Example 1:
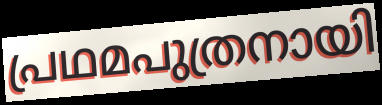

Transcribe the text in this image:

പ്രഥമപുത്രനായി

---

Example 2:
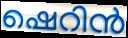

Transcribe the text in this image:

ഷെറിൻ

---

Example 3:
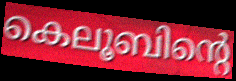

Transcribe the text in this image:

കെലൂബിന്റെ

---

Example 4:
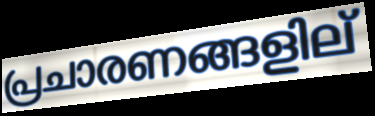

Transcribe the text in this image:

പ്രചാരണങ്ങളില്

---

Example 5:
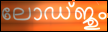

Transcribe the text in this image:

ലോഡ്ജും